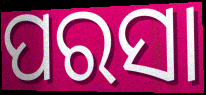
ପରସା